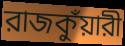
রাজকুঁয়ারী